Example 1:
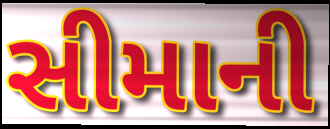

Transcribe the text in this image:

સીમાની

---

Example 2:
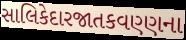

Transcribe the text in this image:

સાલિકેદારજાતકવણ્ણના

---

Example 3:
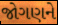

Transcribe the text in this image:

જોગણને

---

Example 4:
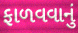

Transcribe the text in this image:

ફાળવવાનું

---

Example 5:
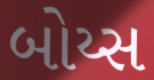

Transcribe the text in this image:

બોય્સ